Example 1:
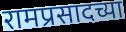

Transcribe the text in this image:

रामप्रसादच्या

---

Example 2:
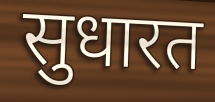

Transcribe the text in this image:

सुधारत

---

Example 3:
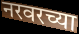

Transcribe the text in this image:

नरवरच्या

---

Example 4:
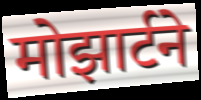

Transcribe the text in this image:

मोझार्टने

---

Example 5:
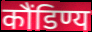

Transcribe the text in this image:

कौंडिण्य